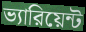
ভ্যারিয়েন্ট